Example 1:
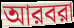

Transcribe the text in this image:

আরবরা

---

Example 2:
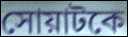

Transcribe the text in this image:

সোয়াটকে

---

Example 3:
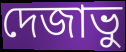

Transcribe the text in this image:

দেজাভু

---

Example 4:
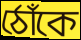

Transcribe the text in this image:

ঠোঁকে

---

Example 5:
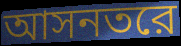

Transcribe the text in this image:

আসনতরে